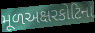
મૂળઅક્ષરકોટિના